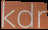
kdr